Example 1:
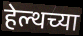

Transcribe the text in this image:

हेल्थच्या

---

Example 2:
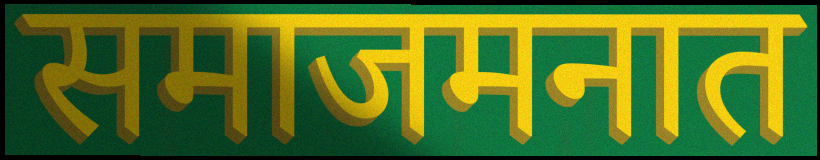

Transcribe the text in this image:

समाजमनात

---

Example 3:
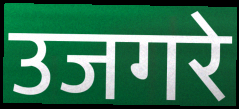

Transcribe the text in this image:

उजगरे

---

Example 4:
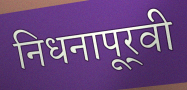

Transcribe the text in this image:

निधनापूर्वी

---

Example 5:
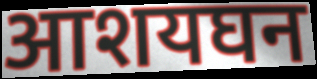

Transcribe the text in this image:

आशयघन